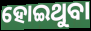
ହୋଇଥୁବା